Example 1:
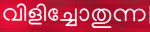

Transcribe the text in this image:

വിളിച്ചോതുന്ന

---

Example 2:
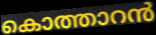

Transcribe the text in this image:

കൊത്താറൻ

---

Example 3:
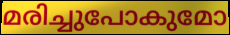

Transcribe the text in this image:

മരിച്ചുപോകുമോ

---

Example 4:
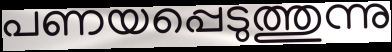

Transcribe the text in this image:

പണയപ്പെടുത്തുന്നു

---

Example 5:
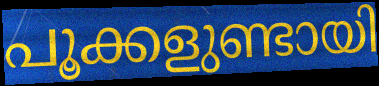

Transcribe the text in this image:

പൂക്കളുണ്ടായി